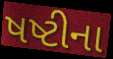
ષષ્ટીના